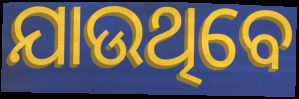
ଯାଉଥିବେ